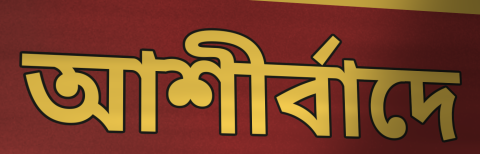
আশীর্বাদে